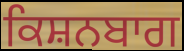
ਕਿਸ਼ਨਬਾਗ